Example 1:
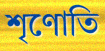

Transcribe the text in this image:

শৃণোতি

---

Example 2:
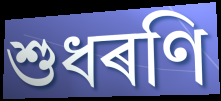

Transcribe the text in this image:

শুধৰণি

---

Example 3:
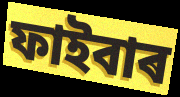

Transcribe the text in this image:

ফাইবাৰ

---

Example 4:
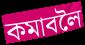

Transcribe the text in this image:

কমাবলৈ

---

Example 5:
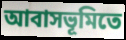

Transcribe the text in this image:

আবাসভূমিতে